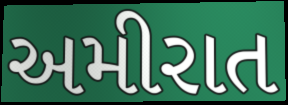
અમીરાત